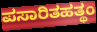
ಪಸಾರಿತಹತ್ಥಂ